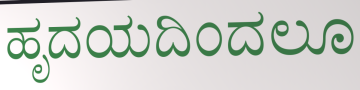
ಹೃದಯದಿಂದಲೂ